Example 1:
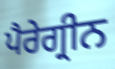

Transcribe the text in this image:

ਪੈਰੇਗ੍ਰੀਨ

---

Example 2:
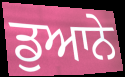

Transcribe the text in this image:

ਡੁਆਨੇ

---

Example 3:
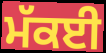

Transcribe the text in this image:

ਮੱਕਈ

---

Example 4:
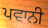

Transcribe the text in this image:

ਪਵਾਨੀ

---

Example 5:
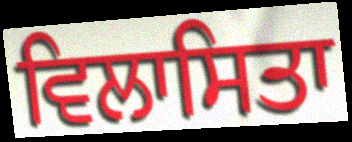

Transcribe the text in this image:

ਵਿਲਾਸਿਤਾ